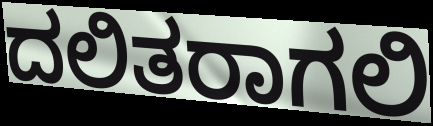
ದಲಿತರಾಗಲಿ